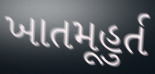
ખાતમૂહુર્ત